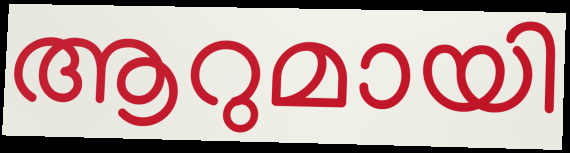
ആറുമായി